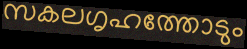
സകലഗൃഹത്തോടും